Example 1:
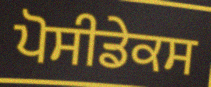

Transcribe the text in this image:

ਪੋਸੀਡੇਕਸ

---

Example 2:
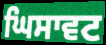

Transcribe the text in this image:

ਘਿਸਾਵਟ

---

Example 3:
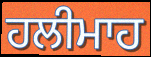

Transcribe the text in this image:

ਹਲੀਮਾਹ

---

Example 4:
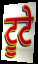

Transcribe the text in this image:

ਟੂਟੇ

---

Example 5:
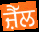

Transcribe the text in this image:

ਜ਼ੈੱਲ